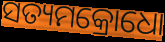
ସତ୍ୟମକ୍ରୋଧୋ